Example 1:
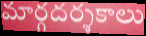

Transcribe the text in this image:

మార్గదర్శకాలు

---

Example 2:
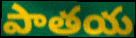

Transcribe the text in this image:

పాతయ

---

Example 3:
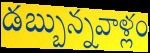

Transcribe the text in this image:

డబ్బున్నవాళ్లం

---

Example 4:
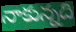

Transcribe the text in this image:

నాకున్నది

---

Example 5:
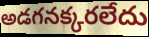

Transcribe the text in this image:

అడగనక్కరలేదు